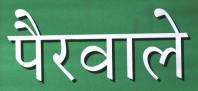
पैरवाले